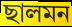
ছালমন